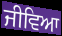
ਜੀਵਿਆ